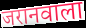
जरानवाला